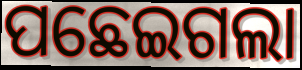
ପଛେଇଗଲା